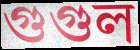
গুগুল